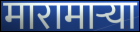
मारामाऱ्या